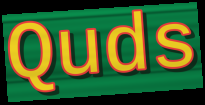
Quds